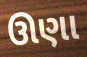
ઊણા